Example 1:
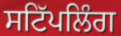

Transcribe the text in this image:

ਸਟਿੱਪਲਿੰਗ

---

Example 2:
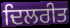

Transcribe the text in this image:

ਦਿਲਰੀਤ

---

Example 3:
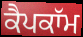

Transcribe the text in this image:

ਕੈਪਕਾੱਮ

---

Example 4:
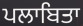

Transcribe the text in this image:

ਪਲਾਬਿਤਾ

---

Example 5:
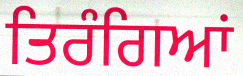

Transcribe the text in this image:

ਤਿਰੰਗਿਆਂ